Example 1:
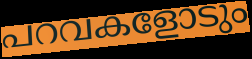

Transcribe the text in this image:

പറവകളോടും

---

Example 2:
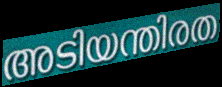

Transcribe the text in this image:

അടിയന്തിരത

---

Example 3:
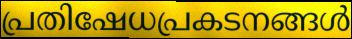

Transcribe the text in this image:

പ്രതിഷേധപ്രകടനങ്ങൾ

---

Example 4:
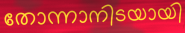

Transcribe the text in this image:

തോന്നാനിടയായി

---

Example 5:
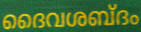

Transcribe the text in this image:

ദൈവശബ്ദം